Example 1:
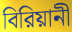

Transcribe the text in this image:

বিরিয়ানী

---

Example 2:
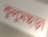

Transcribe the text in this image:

কুলুমছড়া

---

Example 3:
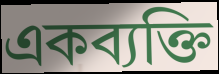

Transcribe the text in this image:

একব্যক্তি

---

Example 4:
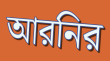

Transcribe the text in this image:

আরনির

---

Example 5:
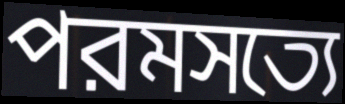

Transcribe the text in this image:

পরমসত্যে